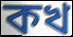
কখ